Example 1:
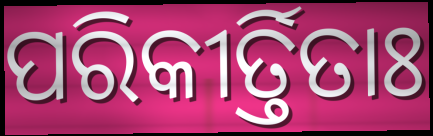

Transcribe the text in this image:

ପରିକୀର୍ତ୍ତିତାଃ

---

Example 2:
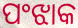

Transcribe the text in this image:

ପଂଝାକ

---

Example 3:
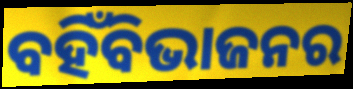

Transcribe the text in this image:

ବହିଁବିଭାଜନର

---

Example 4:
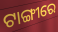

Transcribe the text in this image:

ଟାଙ୍ଗୀରେ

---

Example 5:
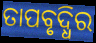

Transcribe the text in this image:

ତାପବୃଦ୍ଧିର